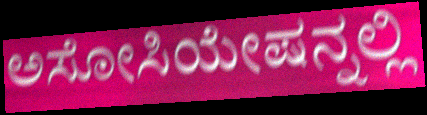
ಅಸೋಸಿಯೇಷನ್ನಲ್ಲಿ